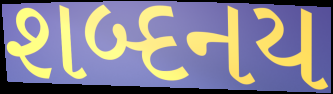
શબ્દનય